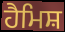
ਹੈਮਿਸ਼